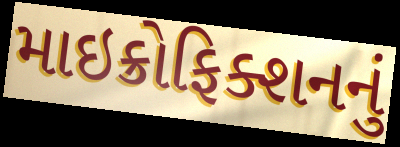
માઇક્રોફિક્શનનું